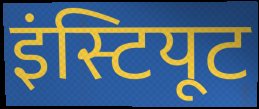
इंस्टियूट